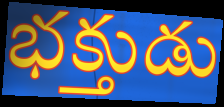
భక్తుడు